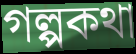
গল্পকথা